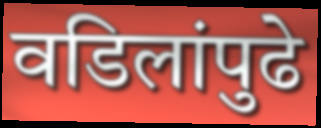
वडिलांपुढे